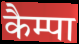
कैम्पा